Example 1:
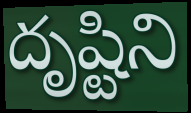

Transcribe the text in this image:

దృష్టిని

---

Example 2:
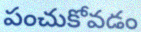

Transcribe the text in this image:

పంచుకోవడం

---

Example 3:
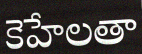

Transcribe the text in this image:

కెహేలతా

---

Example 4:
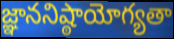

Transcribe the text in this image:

జ్ఞాననిష్ఠాయోగ్యతా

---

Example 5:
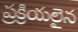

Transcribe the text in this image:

ప్రక్రియలైన